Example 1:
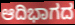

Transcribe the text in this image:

ಆದಿಭಾಗದ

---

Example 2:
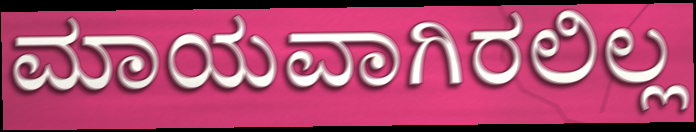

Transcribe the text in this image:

ಮಾಯವಾಗಿರಲಿಲ್ಲ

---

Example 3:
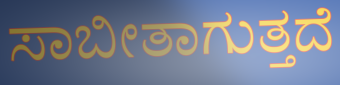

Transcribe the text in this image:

ಸಾಬೀತಾಗುತ್ತದೆ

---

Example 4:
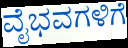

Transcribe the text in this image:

ವೈಭವಗಳಿಗೆ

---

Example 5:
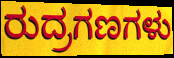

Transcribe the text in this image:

ರುದ್ರಗಣಗಳು